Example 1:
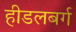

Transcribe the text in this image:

हीडलबर्ग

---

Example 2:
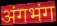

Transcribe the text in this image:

अंगभंग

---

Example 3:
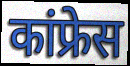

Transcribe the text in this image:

कांफ्रेस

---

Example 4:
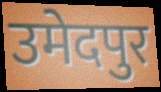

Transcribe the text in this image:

उमेदपुर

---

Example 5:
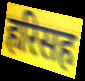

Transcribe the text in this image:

हरिसह